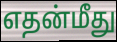
எதன்மீது